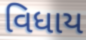
વિધાય